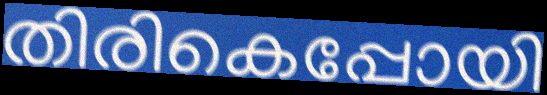
തിരികെപ്പോയി